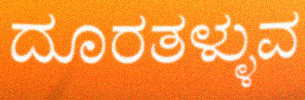
ದೂರತಳ್ಳುವ